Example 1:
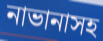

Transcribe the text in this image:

নাভানাসহ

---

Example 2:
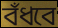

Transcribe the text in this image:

বঁধবে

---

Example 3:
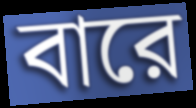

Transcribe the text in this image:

বারে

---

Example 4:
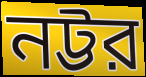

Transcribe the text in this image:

নট্টর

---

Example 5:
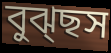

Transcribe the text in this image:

বুঝ্ছস